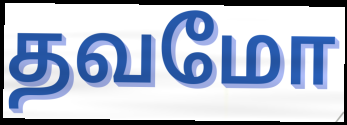
தவமோ